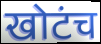
खोटंच